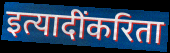
इत्यादींकरिता